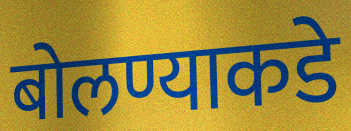
बोलण्याकडे